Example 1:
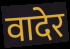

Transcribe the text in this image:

वादेर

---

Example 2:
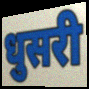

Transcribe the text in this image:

धुसरी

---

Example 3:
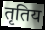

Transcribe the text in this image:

तृतिय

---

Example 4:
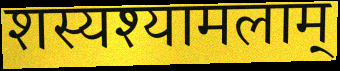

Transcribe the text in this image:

शस्यश्यामलाम्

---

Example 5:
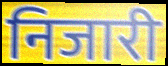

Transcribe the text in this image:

निजारी